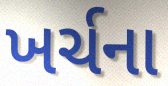
ખર્ચના